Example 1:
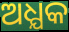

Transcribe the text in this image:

ଅଧ୍ଯକ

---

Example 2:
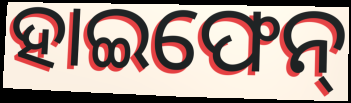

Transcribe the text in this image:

ହାଇଫେନ୍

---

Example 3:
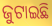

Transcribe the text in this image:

ଜୁଟାଇଛି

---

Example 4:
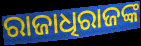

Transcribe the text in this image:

ରାଜାଧିରାଜଙ୍କ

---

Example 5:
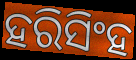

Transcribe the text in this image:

ହରିସିଂହ